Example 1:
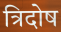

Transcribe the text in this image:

त्रिदोष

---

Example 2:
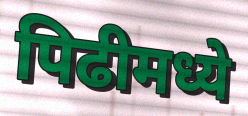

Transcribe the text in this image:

पिढीमध्ये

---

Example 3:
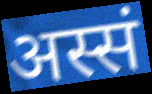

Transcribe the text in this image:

अस्सं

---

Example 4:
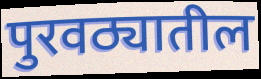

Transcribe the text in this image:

पुरवठ्यातील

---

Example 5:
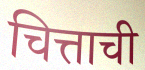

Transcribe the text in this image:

चित्ताची